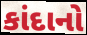
કાંદાનો